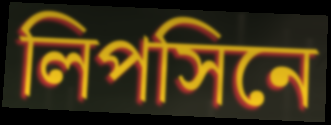
লিপসিনে